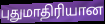
புதுமாதிரியான